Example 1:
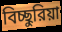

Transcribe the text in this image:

বিচ্ছুরিয়া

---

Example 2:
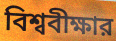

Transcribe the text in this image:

বিশ্ববীক্ষার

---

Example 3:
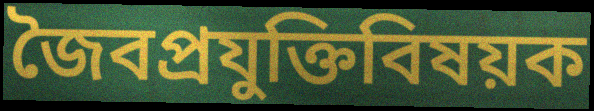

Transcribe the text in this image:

জৈবপ্রযুক্তিবিষয়ক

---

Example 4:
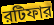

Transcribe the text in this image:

রটিফার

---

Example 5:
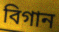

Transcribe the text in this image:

বিগান